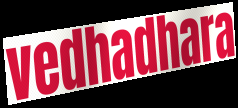
vedhadhara